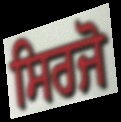
ਸਿਰਜੋ